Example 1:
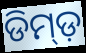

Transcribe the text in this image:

ଡିମ୍ଡ଼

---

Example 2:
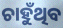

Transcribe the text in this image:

ଚାହୁଁଥିବ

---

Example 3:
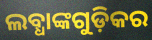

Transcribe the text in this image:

ଲବ୍ଧାଙ୍କଗୁଡ଼ିକର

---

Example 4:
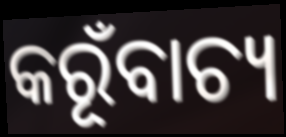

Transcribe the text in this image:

କରୂଁବାଚ୍ୟ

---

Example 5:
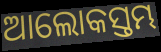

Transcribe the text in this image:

ଆଲୋକସ୍ତମ୍ଭ